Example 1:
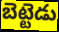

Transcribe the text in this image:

బెట్టెడు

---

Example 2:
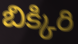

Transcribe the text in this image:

బిక్కిరి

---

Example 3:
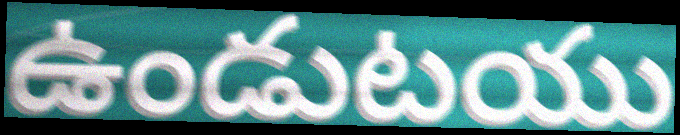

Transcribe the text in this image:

ఉండుటయు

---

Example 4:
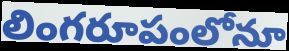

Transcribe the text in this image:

లింగరూపంలోనూ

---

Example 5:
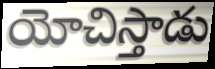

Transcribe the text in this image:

యోచిస్తాడు